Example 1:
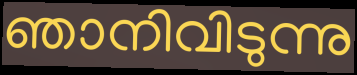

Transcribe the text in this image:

ഞാനിവിടുന്നു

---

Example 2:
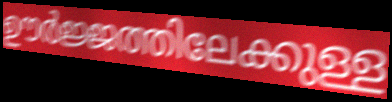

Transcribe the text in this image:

ഊർജ്ജത്തിലേക്കുള്ള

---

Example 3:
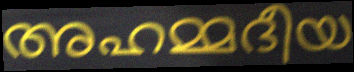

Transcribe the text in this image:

അഹമ്മദീയ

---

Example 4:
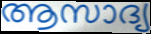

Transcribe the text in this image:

ആസാദ്യ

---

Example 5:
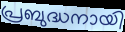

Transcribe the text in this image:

പ്രബുദ്ധനായി